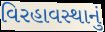
વિરહાવસ્થાનું